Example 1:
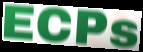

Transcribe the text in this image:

ECPs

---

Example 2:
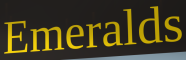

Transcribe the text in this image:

Emeralds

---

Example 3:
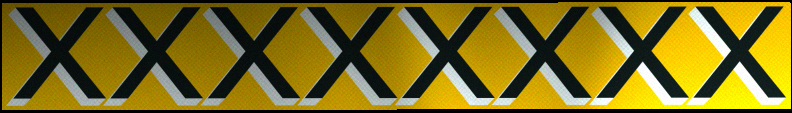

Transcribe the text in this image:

xxxxxxxx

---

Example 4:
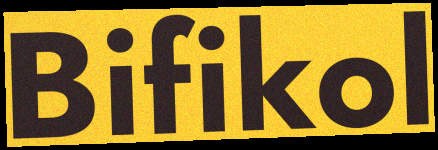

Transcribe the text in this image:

Bifikol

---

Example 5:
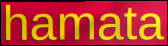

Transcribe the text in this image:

hamata